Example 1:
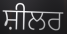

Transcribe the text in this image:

ਸ਼ੀਲਰ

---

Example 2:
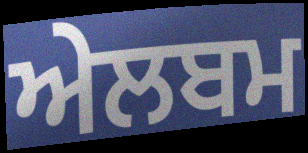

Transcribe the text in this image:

ਅੇਲਬਮ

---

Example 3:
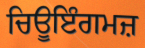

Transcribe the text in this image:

ਚਿਊਇੰਗਮਜ਼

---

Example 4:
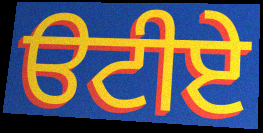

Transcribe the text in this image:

ੳਟੀਏ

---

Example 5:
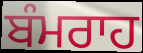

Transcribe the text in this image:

ਬੰਮਰਾਹ